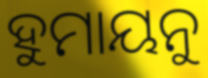
ହୁମାୟନୁ